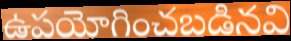
ఉపయోగించబడినవి